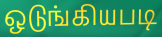
ஒடுங்கியபடி